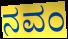
ನವಂ